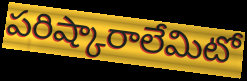
పరిష్కారాలేమిటో